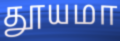
தூயமா